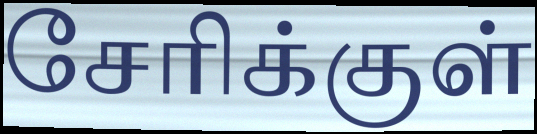
சேரிக்குள்